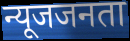
न्यूजजनता